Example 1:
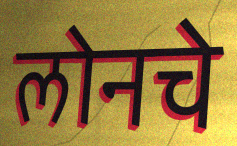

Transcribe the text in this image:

लोनचे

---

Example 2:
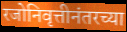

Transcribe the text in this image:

रजोनिवृत्तीनंतरच्या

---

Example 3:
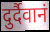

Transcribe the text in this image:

दुर्दैवानं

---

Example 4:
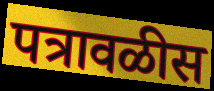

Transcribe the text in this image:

पत्रावळीस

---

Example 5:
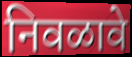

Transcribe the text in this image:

निवळावे